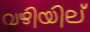
വഴിയില്